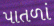
પાતળાં